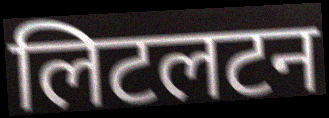
लिटलटन